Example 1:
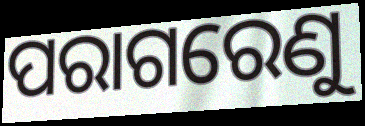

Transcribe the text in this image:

ପରାଗରେଣୁ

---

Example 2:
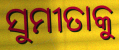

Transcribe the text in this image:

ସୁମୀତାକୁ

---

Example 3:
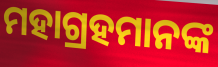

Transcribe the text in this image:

ମହାଗ୍ରହମାନଙ୍କ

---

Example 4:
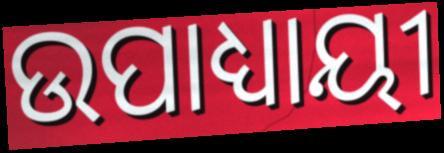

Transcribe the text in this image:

ଉପାଧ୍ୟାୟୀ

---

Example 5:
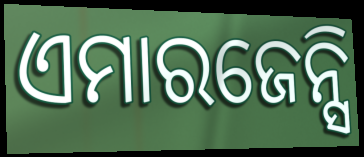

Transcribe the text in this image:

ଏମାରଜେନ୍ସି